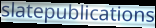
slatepublications